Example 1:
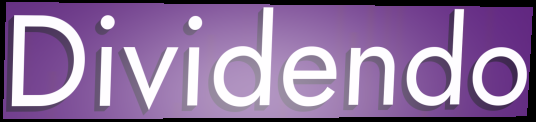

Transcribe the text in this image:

Dividendo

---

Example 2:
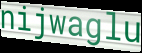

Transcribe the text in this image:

nijwaglu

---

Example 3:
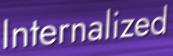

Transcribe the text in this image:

Internalized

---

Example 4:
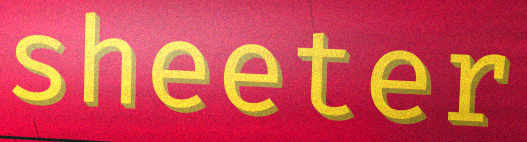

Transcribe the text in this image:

sheeter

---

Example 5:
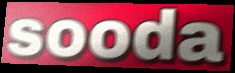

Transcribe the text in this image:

sooda